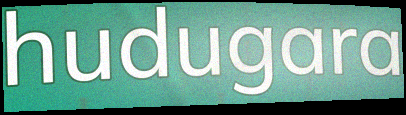
hudugara